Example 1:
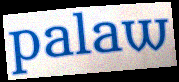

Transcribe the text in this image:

palaw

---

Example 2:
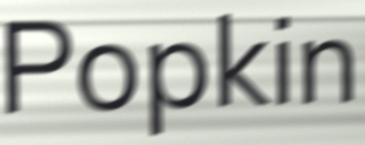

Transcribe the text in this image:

Popkin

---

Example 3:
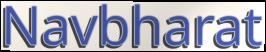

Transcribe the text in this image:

Navbharat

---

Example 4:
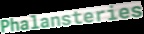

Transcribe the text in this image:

Phalansteries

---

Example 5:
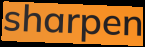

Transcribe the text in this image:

sharpen